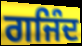
ਗਜਿੰਦ